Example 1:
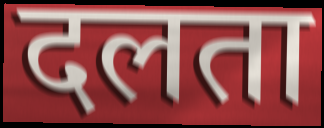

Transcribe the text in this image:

दलता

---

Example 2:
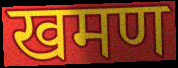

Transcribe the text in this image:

खमण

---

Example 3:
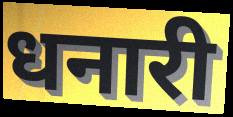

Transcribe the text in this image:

धनारी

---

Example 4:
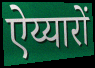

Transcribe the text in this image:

ऐय्यारों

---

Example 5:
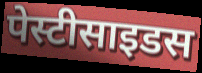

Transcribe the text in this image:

पेस्टीसाइडस